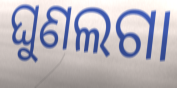
ଘୁଣଲଗା